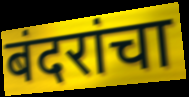
बंदरांचा